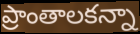
ప్రాంతాలకన్నా